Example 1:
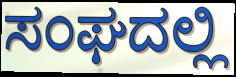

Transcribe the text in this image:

ಸಂಘದಲ್ಲಿ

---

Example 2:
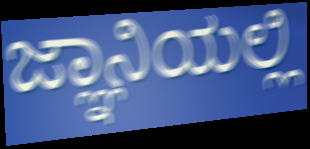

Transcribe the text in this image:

ಜ್ಞಾನಿಯಲ್ಲಿ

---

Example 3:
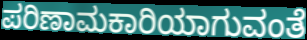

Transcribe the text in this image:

ಪರಿಣಾಮಕಾರಿಯಾಗುವಂತೆ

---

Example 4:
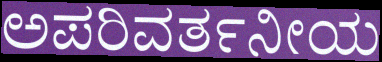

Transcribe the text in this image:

ಅಪರಿವರ್ತನೀಯ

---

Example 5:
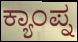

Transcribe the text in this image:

ಕ್ಯಾಂಪ್ನ